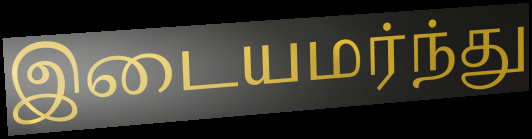
இடையமர்ந்து